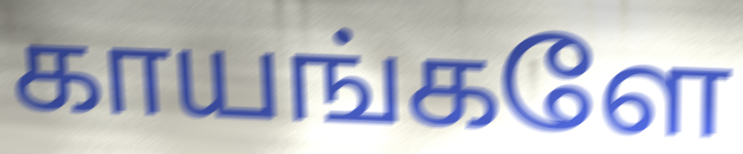
காயங்களே